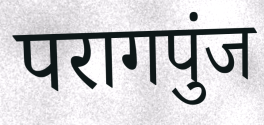
परागपुंज